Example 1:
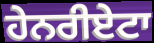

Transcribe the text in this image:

ਹੇਨਰੀਏਟਾ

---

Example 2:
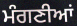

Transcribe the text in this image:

ਮੰਗਣੀਆਂ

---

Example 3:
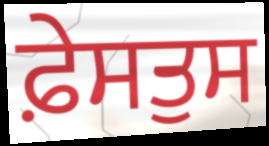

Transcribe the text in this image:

ਫ਼ੇਸਤੁਸ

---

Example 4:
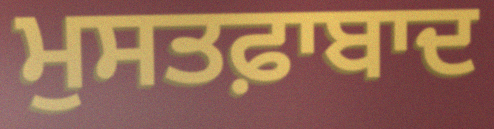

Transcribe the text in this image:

ਮੁਸਤਫ਼ਾਬਾਦ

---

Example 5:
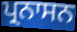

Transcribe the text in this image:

ਪ੍ਰਨਾਸਨ